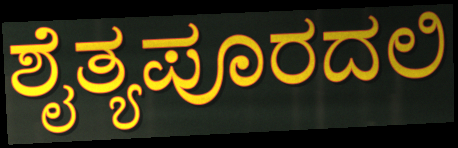
ಶೈತ್ಯಪೂರದಲಿ